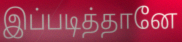
இப்படித்தானே